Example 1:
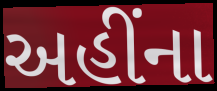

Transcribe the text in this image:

અહીંના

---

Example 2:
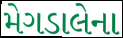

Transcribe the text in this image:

મેગડાલેના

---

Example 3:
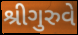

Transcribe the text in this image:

શ્રીગુરુવે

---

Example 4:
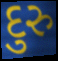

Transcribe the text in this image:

દુરુ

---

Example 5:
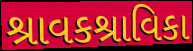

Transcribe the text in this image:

શ્રાવકશ્રાવિકા